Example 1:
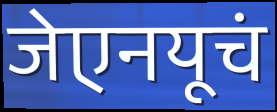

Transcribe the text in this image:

जेएनयूचं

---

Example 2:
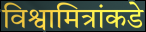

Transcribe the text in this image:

विश्वामित्रांकडे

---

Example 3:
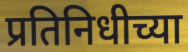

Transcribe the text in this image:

प्रतिनिधीच्या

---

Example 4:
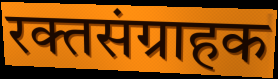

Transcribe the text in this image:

रक्तसंग्राहक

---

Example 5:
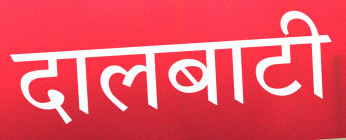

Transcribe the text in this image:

दालबाटी